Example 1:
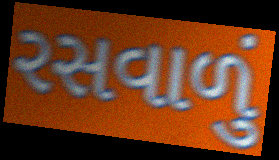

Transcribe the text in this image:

રસવાળું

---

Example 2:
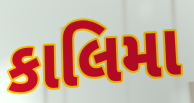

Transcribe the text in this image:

કાલિમા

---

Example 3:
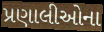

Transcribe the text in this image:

પ્રણાલીઓના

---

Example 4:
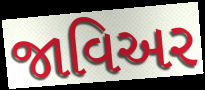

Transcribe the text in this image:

જાવિઅર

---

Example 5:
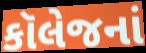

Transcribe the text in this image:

કૉલેજનાં